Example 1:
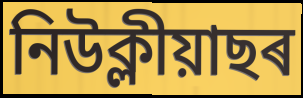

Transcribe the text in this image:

নিউক্লীয়াছৰ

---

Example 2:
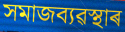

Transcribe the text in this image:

সমাজব্যৱস্থাৰ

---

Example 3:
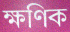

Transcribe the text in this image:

ক্ষণিক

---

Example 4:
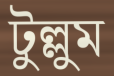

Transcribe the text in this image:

টুল্লুম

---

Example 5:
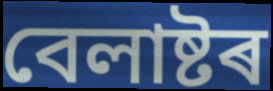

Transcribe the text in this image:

বেলাষ্টৰ